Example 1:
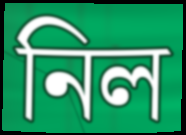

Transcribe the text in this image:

নিল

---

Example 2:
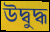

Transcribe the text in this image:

উদ্বুদ্ধ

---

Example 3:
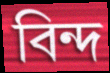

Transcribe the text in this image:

বিন্দ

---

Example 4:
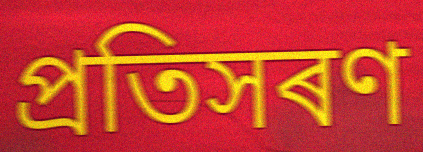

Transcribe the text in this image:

প্ৰতিসৰণ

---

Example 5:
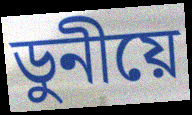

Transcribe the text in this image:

ডুনীয়ে